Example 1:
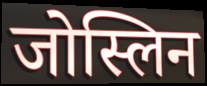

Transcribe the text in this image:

जोस्लिन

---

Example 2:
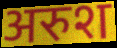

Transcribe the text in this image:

अरुश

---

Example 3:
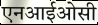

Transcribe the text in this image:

एनआईओसी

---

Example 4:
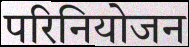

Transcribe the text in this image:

परिनियोजन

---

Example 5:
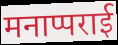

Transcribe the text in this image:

मनाप्पराई